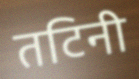
तटिनी